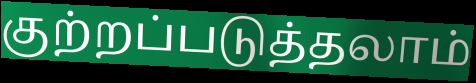
குற்றப்படுத்தலாம்